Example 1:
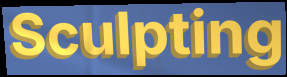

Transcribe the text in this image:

Sculpting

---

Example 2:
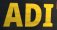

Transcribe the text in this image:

ADI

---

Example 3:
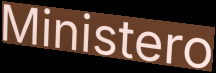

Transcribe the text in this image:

Ministero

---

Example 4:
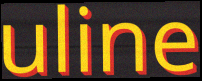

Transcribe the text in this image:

uline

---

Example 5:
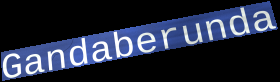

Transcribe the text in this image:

Gandaberunda